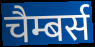
चैम्‍बर्स